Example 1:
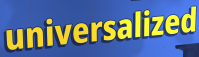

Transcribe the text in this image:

universalized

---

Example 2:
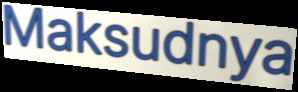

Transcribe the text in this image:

Maksudnya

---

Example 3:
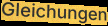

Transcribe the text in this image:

Gleichungen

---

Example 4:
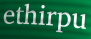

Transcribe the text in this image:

ethirpu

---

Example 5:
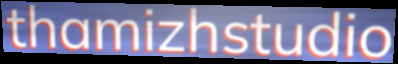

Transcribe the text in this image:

thamizhstudio